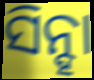
ସିନ୍ହା